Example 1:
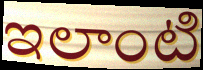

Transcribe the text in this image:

ఇలాంటి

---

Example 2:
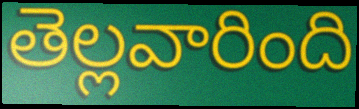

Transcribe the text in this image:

తెల్లవారింది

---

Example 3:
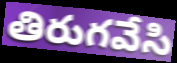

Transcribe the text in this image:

తిరుగవేసి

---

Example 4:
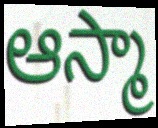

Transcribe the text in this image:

ఆస్మా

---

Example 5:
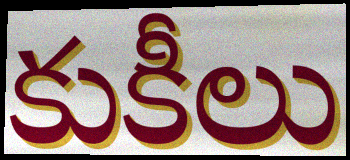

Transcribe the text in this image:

కుకీలు